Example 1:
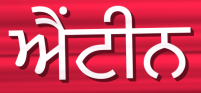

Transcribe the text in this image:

ਐਂਟੀਨ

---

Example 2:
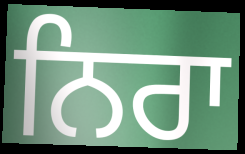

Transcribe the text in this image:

ਨਿਰਾ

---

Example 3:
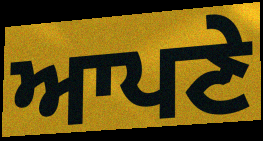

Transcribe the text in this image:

ਆਪਣੇ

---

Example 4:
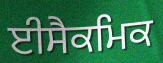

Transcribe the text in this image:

ਈਸੈਕਮਿਕ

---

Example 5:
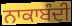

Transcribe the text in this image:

ਨਾਕਾਬੰਦੀ